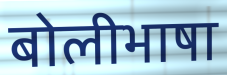
बोलीभाषा